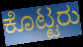
ಕೊಟ್ಟರು